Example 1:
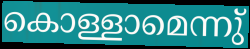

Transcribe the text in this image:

കൊള്ളാമെന്നു്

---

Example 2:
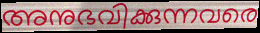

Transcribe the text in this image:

അനുഭവിക്കുന്നവരെ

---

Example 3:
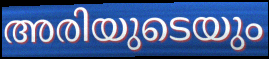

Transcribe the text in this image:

അരിയുടെയും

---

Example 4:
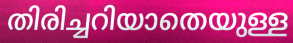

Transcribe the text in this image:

തിരിച്ചറിയാതെയുള്ള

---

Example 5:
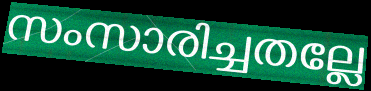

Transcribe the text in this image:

സംസാരിച്ചതല്ലേ